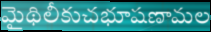
మైథిలీకుచభూషణామల